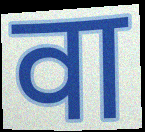
वा